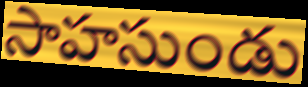
సాహసుండు